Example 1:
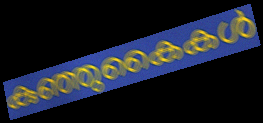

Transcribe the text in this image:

കുഞ്ഞുകൈകൾ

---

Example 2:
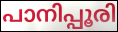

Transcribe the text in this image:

പാനിപ്പൂരി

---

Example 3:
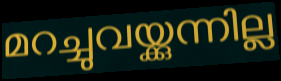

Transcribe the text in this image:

മറച്ചുവയ്ക്കുന്നില്ല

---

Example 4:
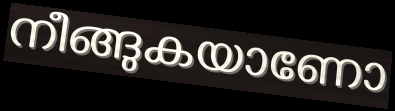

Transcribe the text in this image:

നീങ്ങുകയാണോ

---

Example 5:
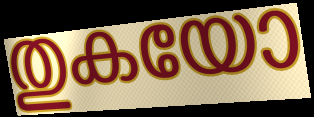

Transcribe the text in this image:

തുകയോ